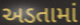
અડતામાં